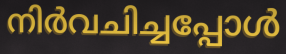
നിർവചിച്ചപ്പോൾ